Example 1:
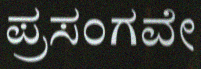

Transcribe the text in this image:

ಪ್ರಸಂಗವೇ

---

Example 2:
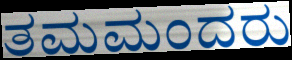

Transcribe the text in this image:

ತಮಮಂದರು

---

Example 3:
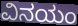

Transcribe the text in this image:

ವಿನಯಂ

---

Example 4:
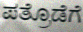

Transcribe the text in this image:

ಪತ್ರೊಡೆಗೆ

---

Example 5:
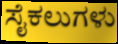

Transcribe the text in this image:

ಸೈಕಲುಗಳು